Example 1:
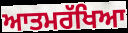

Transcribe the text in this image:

ਆਤਮਰੱਖਿਆ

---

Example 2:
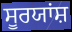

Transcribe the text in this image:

ਸੂਰਯਾਂਸ਼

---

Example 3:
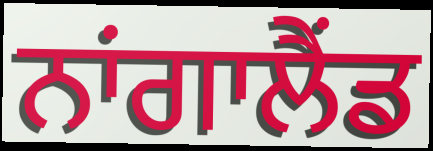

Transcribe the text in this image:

ਨਾਂਗਾਲੈਂਡ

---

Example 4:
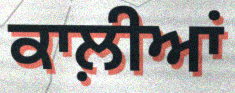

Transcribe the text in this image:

ਕਾਲ਼ੀਆਂ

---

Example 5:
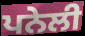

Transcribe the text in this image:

ਪਨੇਲੀ